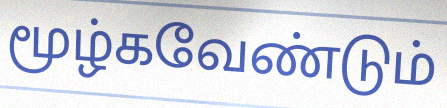
மூழ்கவேண்டும்